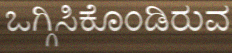
ಒಗ್ಗಿಸಿಕೊಂಡಿರುವ